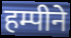
हम्पीने